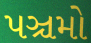
પઞ્ચમો